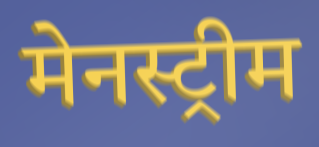
मेनस्ट्रीम